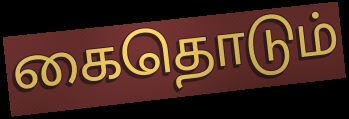
கைதொடும்